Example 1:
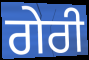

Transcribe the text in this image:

ਗੇਰੀ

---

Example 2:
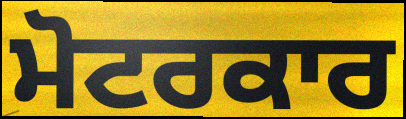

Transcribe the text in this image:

ਮੋਟਰਕਾਰ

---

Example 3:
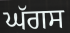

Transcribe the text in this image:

ਘੱਗਸ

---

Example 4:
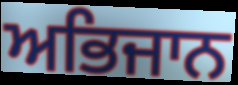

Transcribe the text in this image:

ਅਭਿਜਾਨ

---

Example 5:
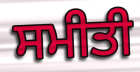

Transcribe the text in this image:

ਸਮੀਤੀ